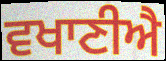
ਵਖਾਣੀਐ